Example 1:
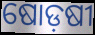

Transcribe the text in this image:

ଷୋଡ଼ଷୀ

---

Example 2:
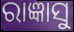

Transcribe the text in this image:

ରାଜ୍ଞାସୁ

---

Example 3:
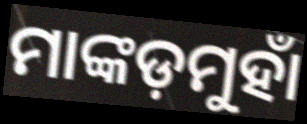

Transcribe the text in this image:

ମାଙ୍କଡ଼ମୁହାଁ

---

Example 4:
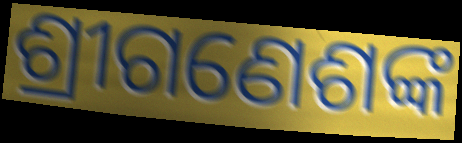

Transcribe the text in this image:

ଶ୍ରୀଗଣେଶଙ୍କ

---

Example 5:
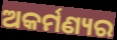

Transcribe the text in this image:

ଅକର୍ମଣ୍ୟର